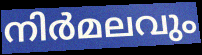
നിർമലവും